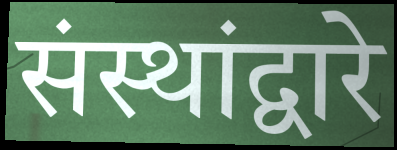
संस्थांद्वारे